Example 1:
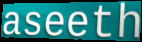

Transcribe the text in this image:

aseeth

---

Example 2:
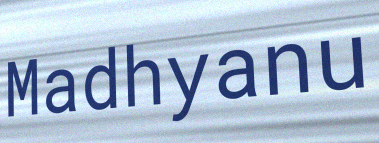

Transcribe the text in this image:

Madhyanu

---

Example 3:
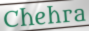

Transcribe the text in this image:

Chehra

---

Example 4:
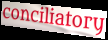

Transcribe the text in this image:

conciliatory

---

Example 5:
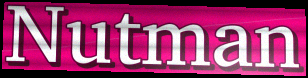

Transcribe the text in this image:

Nutman